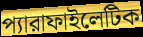
প্যারাফাইলেটিক